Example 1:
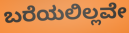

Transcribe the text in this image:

ಬರೆಯಲಿಲ್ಲವೇ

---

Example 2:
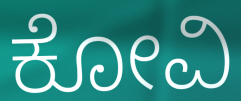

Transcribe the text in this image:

ಕೋವಿ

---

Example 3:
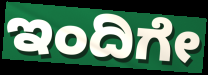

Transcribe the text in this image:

ಇಂದಿಗೇ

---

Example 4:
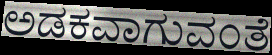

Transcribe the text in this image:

ಅಡಕವಾಗುವಂತೆ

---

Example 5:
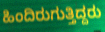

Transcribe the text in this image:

ಹಿಂದಿರುಗುತ್ತಿದ್ದರು